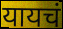
यायचं